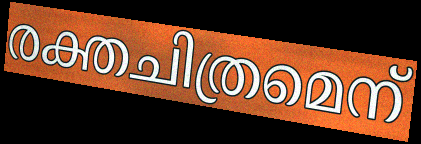
രക്തചിത്രമെന്